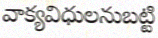
వాక్యవిధులనుబట్టి